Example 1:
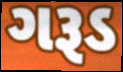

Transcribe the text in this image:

ગરૂડ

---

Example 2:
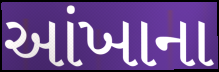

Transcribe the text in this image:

આંખાના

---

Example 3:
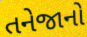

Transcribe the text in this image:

તનેજાનો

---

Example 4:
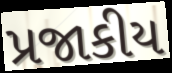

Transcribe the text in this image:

પ્રજાકીય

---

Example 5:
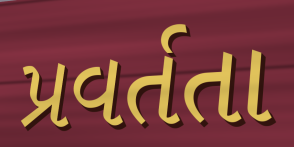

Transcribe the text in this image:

પ્રવર્તતા